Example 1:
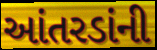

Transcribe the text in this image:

આંતરડાંની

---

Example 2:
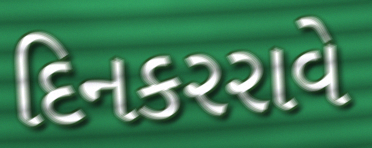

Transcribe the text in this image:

દિનકરરાવે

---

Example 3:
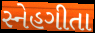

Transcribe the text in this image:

સ્નેહગીતા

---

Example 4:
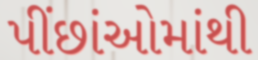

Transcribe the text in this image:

પીંછાંઓમાંથી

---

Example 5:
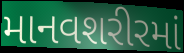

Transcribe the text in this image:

માનવશરીરમાં